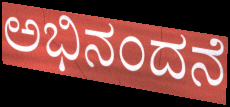
ಅಭಿನಂದನೆ